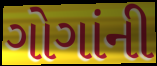
ગોગાંની